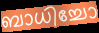
ബാധിച്ചോ